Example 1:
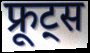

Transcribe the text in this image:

फ्रूट्स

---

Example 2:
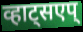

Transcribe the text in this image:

व्हाट्सएप्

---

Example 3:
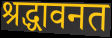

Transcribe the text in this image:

श्रद्धावनत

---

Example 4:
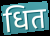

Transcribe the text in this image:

धित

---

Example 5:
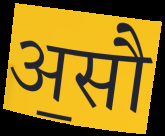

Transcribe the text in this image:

अ॒सौ